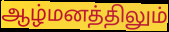
ஆழ்மனத்திலும்